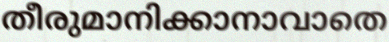
തീരുമാനിക്കാനാവാതെ